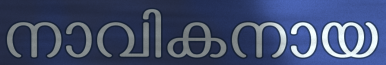
നാവികനായ